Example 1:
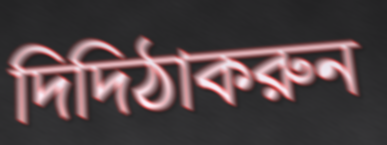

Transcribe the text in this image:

দিদিঠাকরুন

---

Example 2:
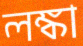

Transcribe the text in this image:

লঙ্কা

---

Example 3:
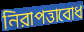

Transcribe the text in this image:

নিরাপত্তাবোধ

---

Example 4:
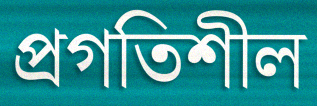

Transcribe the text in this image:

প্রগতিশীল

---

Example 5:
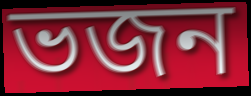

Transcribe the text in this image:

ভজন